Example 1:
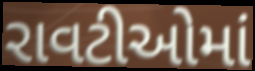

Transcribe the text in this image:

રાવટીઓમાં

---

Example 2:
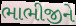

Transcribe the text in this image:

ભાભીજીને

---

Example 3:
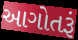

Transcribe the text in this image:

આગોતરૂં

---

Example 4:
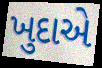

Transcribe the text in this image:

ખુદાએ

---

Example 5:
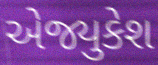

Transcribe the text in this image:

એજ્યુકેશ